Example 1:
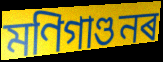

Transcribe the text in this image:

মণিগাণ্ডনৰ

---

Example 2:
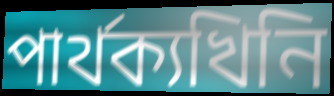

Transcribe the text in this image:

পাৰ্থক্যখিনি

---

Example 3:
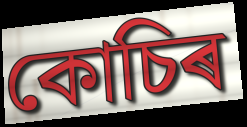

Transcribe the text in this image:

কোচিৰ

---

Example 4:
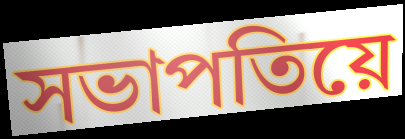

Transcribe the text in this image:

সভাপতিয়ে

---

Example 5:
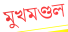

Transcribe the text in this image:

মুখমণ্ডল